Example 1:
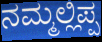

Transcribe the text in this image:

ನಮ್ಮಲ್ಲಿಪ್ಪ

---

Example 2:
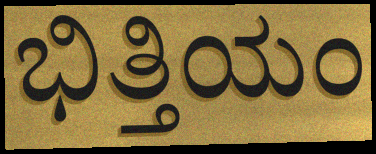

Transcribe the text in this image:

ಭಿತ್ತಿಯಂ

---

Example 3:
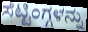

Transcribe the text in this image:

ಸೆಟ್ಟಿಂಗ್ಗಳನ್ನು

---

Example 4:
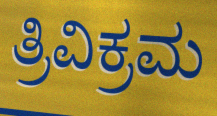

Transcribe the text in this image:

ತ್ರಿವಿಕ್ರಮ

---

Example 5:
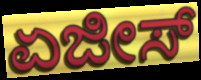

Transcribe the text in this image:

ಏಜೀಸ್